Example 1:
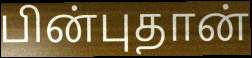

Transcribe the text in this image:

பின்புதான்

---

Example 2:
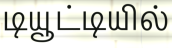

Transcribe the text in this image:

டியூட்டியில்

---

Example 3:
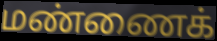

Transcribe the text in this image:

மண்ணைக்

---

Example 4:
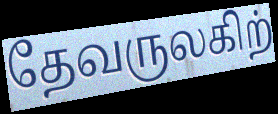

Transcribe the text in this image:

தேவருலகிற்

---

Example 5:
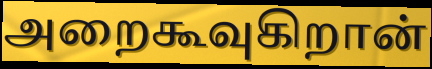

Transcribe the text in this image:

அறைகூவுகிறான்